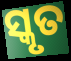
ସ୍କୃତ